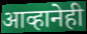
आव्हानेही